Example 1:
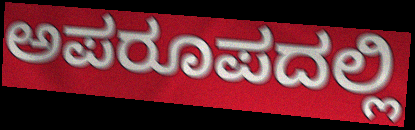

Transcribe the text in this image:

ಅಪರೂಪದಲ್ಲಿ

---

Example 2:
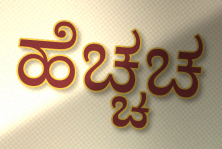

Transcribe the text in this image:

ಹೆಚ್ಚಚ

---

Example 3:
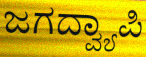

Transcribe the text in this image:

ಜಗದ್ವ್ಯಾಪಿ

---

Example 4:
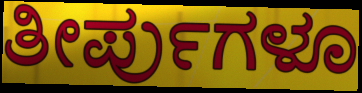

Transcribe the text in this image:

ತೀರ್ಪುಗಳೂ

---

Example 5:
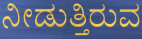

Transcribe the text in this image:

ನೀಡುತ್ತಿರುವ